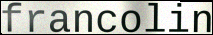
francolin